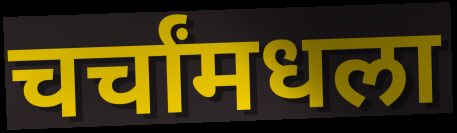
चर्चांमधला